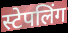
स्टेपलिंग